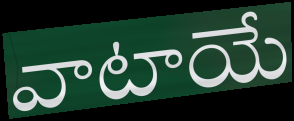
వాటాయే